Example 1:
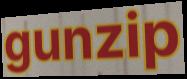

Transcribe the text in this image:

gunzip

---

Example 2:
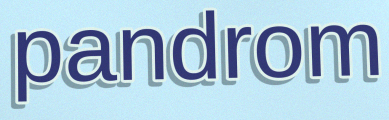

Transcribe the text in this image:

pandrom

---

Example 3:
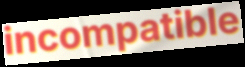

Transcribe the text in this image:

incompatible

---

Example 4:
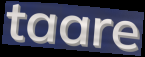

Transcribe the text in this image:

taare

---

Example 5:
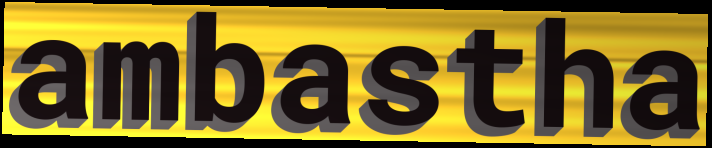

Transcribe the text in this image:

ambastha